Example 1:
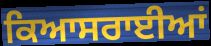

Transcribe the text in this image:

ਕਿਆਸਰਾਈਆਂ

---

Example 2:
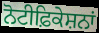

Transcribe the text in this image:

ਨੋਟੀਫ਼ਿਕੇਸ਼ਨਾਂ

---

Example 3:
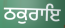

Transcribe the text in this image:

ਠਕੁਰਾਇ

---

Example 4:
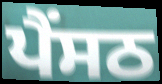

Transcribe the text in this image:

ਪੈਂਸਠ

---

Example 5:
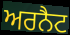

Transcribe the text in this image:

ਅਰਨੈਟ